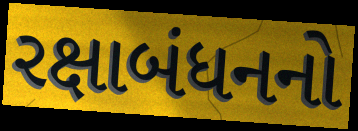
રક્ષાબંધનનો